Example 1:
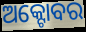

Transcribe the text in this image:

ଅକ୍ଟୋବର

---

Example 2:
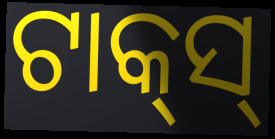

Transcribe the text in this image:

ଟାକ୍‍ସ୍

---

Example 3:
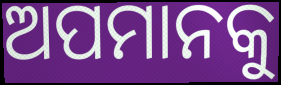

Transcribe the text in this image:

ଅପମାନକୁ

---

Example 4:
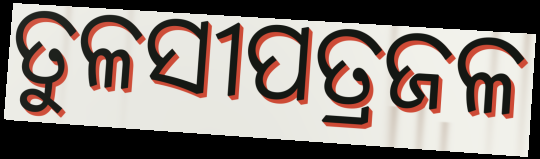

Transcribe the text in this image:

ତୁଳସୀପତ୍ରଜଳ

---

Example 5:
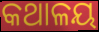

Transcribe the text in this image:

କଥାଳୟ